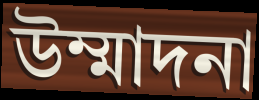
উম্মাদনা